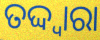
ତଦ୍ଦ୍ଵାରା